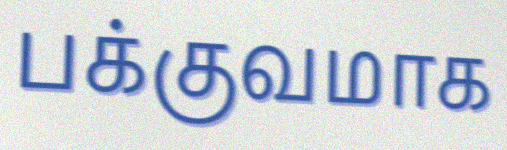
பக்குவமாக